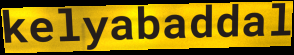
kelyabaddal